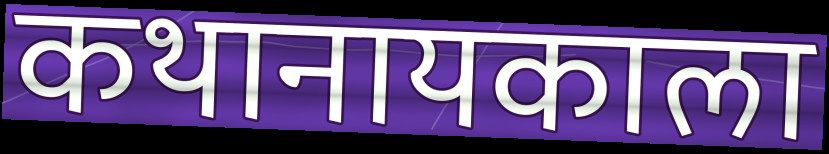
कथानायकाला